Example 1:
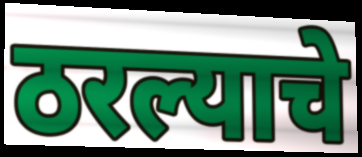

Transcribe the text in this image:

ठरल्याचे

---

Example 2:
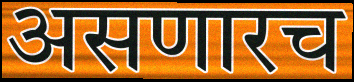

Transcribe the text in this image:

असणारच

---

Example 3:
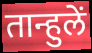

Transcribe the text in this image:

तान्हुलें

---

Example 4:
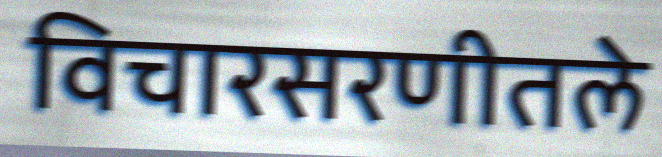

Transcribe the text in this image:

विचारसरणीतले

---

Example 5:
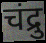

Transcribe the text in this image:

चंद्रु